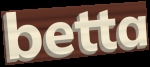
betta